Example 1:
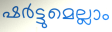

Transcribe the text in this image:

ഷർട്ടുമെല്ലാം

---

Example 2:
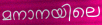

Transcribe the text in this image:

മനാനയിലെ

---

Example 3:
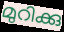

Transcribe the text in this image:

മുറിക്കു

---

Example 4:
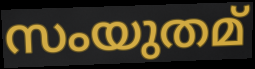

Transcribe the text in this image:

സംയുതമ്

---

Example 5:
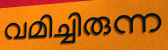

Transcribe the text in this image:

വമിച്ചിരുന്ന